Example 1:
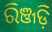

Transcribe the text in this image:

ରିଞ୍ଜଡ଼ି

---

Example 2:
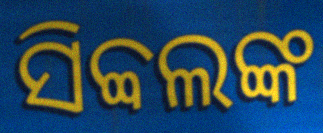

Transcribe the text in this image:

ସିବ୍ବଲଙ୍କ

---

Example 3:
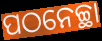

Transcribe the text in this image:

ପଠନେଚ୍ଛା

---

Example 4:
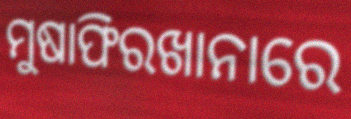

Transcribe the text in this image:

ମୁଷାଫିରଖାନାରେ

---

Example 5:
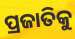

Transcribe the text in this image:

ପ୍ରଜାତିକୁ